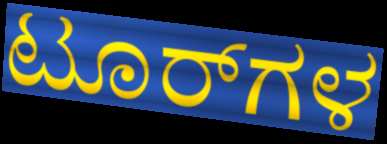
ಟೂರ್‌ಗಳ